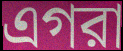
এগরা